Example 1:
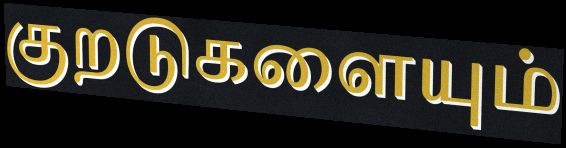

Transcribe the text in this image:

குறடுகளையும்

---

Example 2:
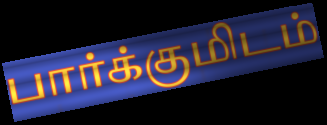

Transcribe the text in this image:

பார்க்குமிடம்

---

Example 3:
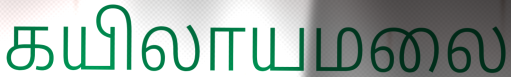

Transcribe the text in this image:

கயிலாயமலை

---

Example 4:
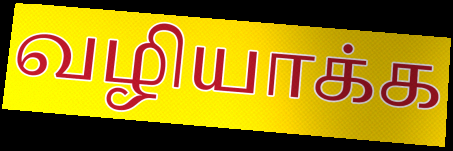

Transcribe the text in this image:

வழியாக்க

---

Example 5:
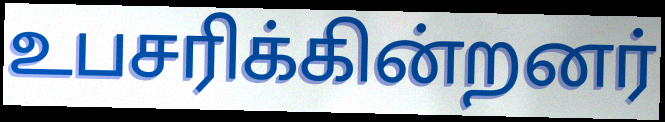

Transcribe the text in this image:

உபசரிக்கின்றனர்